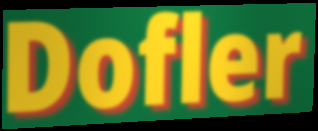
Dofler